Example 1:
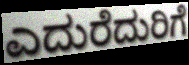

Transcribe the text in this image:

ಎದುರೆದುರಿಗೆ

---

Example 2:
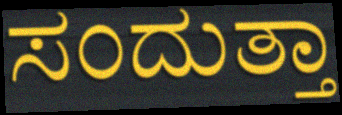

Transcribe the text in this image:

ಸಂದುತ್ತಾ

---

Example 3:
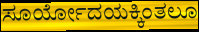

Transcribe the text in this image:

ಸೂರ್ಯೋದಯಕ್ಕಿಂತಲೂ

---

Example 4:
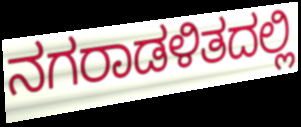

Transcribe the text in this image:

ನಗರಾಡಳಿತದಲ್ಲಿ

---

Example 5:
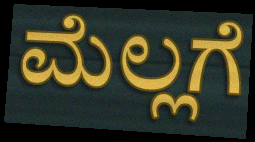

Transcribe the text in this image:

ಮೆಲ್ಲಗೆ